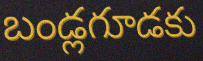
బండ్లగూడకు